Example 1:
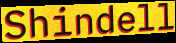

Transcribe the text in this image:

Shindell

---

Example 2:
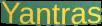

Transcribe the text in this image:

Yantras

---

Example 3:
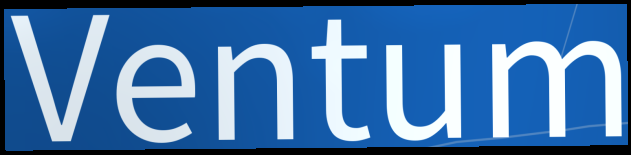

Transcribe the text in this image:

Ventum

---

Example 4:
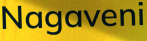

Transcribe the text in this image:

Nagaveni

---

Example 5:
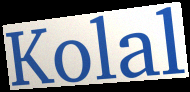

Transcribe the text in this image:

Kolal